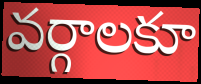
వర్గాలకూ